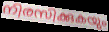
നിരസിക്കുകയും